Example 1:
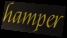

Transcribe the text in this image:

hamper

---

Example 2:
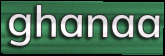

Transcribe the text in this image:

ghanaa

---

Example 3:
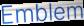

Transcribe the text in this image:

Emblem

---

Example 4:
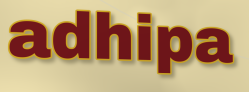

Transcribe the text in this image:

adhipa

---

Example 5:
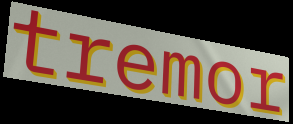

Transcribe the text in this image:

tremor